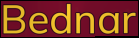
Bednar